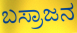
ಬಸ್ರಾಜನ